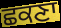
ਛਕਣਾ